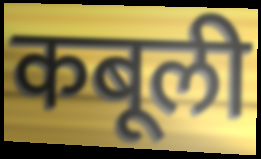
कबूली